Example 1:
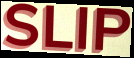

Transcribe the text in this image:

SLIP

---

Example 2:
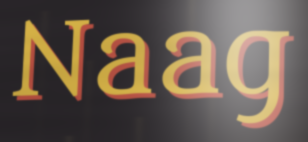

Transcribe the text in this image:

Naag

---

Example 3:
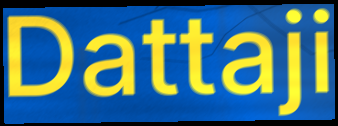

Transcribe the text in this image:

Dattaji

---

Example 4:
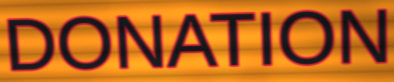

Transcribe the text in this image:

DONATION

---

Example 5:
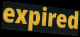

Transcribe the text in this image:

expired